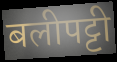
बलीपट्टी